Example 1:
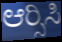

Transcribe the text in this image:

ಆರ್‍ಸಿಸಿ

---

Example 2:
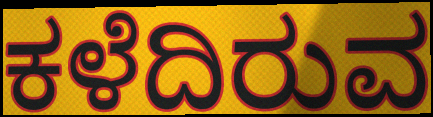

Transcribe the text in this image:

ಕಳೆದಿರುವ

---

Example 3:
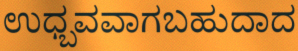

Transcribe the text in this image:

ಉಧ್ಬವವಾಗಬಹುದಾದ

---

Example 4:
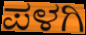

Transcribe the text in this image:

ಪಳಗಿ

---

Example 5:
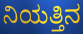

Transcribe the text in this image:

ನಿಯತ್ತಿನ